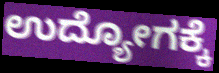
ಉದ್ಯೋಗಕ್ಕೆ